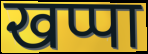
खप्पा